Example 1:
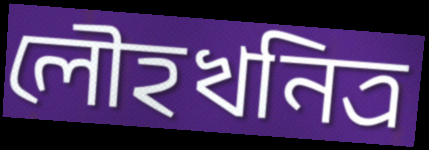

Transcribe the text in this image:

লৌহখনিত্র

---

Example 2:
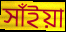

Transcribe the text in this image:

সাঁইয়া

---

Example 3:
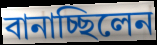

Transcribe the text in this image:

বানাচ্ছিলেন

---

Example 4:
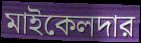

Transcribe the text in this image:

মাইকেলদার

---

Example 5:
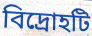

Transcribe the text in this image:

বিদ্রোহটি